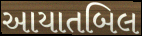
આયાતબિલ